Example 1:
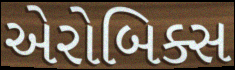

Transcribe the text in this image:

એરોબિક્સ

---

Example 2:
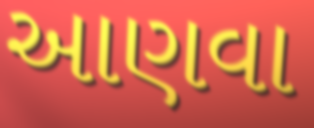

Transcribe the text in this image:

આણવા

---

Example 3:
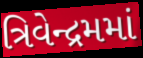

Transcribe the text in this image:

ત્રિવેન્દ્રમમાં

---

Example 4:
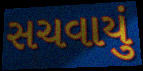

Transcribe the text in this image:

સચવાયું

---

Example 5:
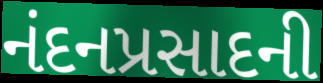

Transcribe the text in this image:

નંદનપ્રસાદની